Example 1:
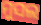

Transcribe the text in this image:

ମୁସଲ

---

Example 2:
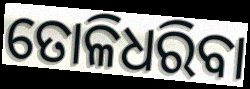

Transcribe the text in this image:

ତୋଳିଧରିବା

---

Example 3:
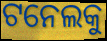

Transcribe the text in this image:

ଟନେଲକୁ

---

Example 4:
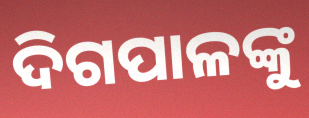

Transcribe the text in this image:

ଦିଗପାଳଙ୍କୁ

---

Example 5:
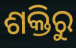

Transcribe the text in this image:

ଶକ୍ତିରୁ